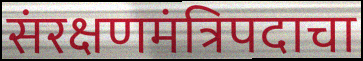
संरक्षणमंत्रिपदाचा